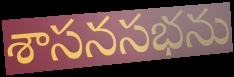
శాసనసభను